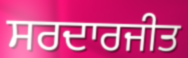
ਸਰਦਾਰਜੀਤ